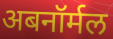
अबनॉर्मल